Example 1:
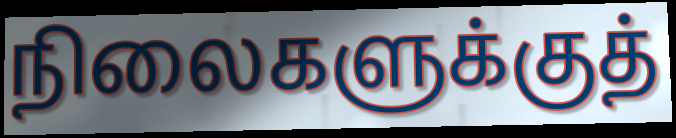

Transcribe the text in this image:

நிலைகளுக்குத்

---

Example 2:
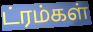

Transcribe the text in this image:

ட்ரம்கள்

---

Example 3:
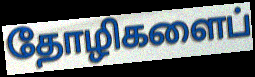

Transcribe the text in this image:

தோழிகளைப்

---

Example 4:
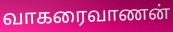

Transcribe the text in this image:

வாகரைவாணன்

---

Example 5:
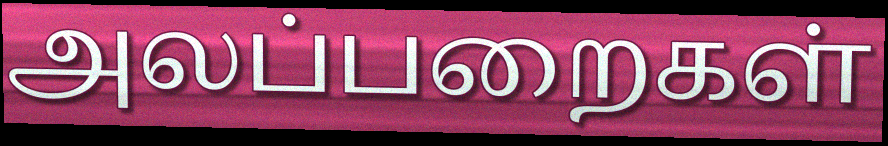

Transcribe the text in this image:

அலப்பறைகள்